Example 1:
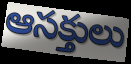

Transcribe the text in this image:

ఆసక్తులు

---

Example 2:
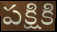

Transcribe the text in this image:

పక్షికి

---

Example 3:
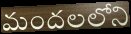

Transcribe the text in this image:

మందలలోని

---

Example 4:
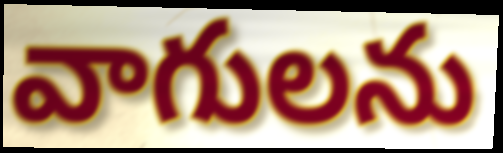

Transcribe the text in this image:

వాగులను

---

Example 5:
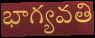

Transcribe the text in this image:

భాగ్యవతి